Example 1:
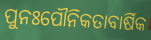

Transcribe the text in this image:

ପୁନଃପୌନିକତାବାର୍ଷିକ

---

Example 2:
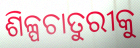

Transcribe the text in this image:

ଶିଳ୍ପଚାତୁରୀକୁ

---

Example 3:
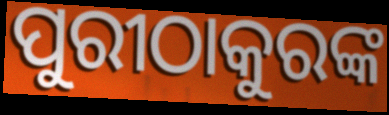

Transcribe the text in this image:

ପୁରୀଠାକୁରଙ୍କ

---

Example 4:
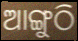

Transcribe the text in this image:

ଆଙ୍ଗୁଠି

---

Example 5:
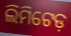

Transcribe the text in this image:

ଲିମିଟେଡ଼